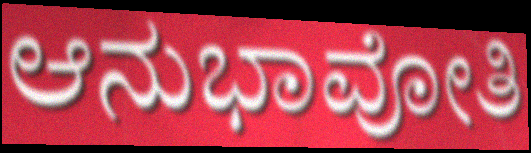
ಆನುಭಾವೋತಿ